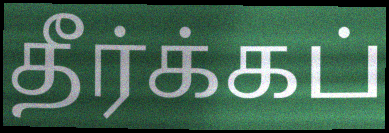
தீர்க்கப்